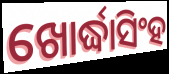
ଖୋର୍ଦ୍ଧାସିଂହ